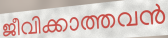
ജീവിക്കാത്തവൻ